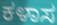
ಕಳಾಸ